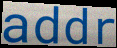
addr